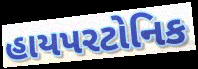
હાયપરટોનિક